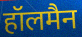
हॉलमैन